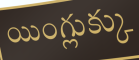
యింగ్లుక్కు